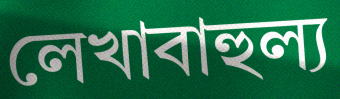
লেখাবাহুল্য